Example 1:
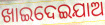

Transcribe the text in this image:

ଖାଇଦେଇଯାଅ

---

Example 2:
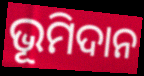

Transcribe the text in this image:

ଭୂମିଦାନ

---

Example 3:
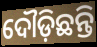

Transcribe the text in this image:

ଦୌଡ଼ିଛନ୍ତି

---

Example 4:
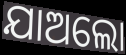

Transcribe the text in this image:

ଯାଅଲୋ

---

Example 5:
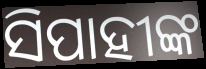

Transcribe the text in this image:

ସିପାହୀଙ୍କ